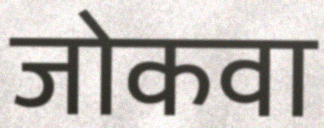
जोकवा